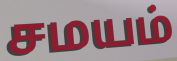
சமயம்